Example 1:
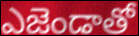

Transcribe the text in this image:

ఎజెండాతో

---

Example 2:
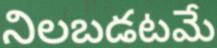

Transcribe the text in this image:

నిలబడటమే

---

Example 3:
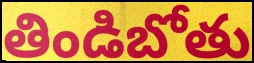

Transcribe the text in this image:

తిండిబోతు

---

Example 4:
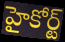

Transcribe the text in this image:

హైకోర్ట్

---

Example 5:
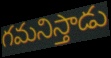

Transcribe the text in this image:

గమనిస్తాడు